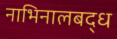
नाभिनालबद्ध